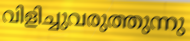
വിളിച്ചുവരുത്തുന്നു